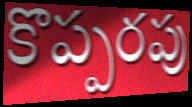
కొప్పరపు